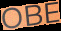
OBE